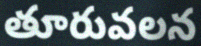
తూరువలన